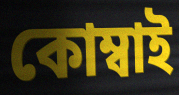
কোম্বাই